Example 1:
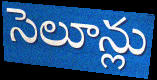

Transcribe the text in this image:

సెలూన్లు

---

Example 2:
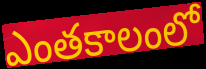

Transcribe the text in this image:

ఎంతకాలంలో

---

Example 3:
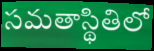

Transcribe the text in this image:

సమతాస్థితిలో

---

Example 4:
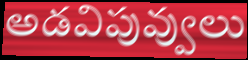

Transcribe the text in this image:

అడవిపువ్వులు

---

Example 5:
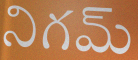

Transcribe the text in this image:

నిగమ్